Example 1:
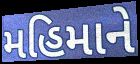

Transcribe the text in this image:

મહિમાને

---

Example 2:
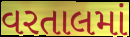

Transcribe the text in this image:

વરતાલમાં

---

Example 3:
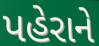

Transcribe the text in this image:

પહેરાને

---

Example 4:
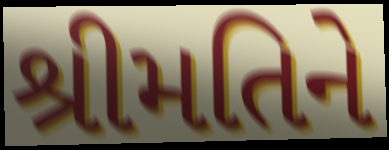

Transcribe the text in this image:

શ્રીમતિને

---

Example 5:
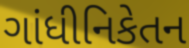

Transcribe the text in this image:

ગાંધીનિકેતન